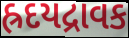
હ્રદયદ્રાવક